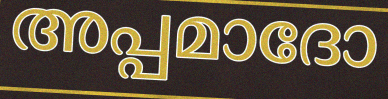
അപ്പമാദോ